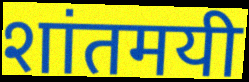
शांतमयी